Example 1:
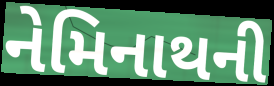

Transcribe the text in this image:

નેમિનાથની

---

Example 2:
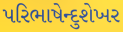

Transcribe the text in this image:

પરિભાષેન્દુશેખર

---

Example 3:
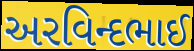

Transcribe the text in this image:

અરવિન્દભાઈ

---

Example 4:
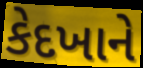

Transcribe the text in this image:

કેદખાને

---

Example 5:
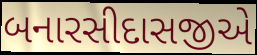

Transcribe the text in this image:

બનારસીદાસજીએ